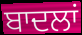
ਬਾਦਲਾਂ